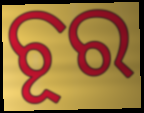
ଚୂର